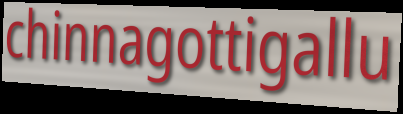
chinnagottigallu